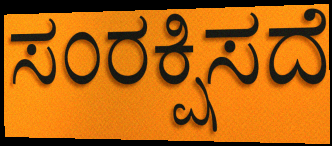
ಸಂರಕ್ಷಿಸದೆ